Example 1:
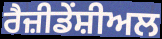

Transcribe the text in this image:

ਰੈਜ਼ੀਡੇਂਸ਼ੀਅਲ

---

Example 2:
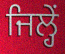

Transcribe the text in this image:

ਜਿਲ੍ਹੇਂ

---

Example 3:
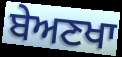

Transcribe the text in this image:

ਬੇਅਣਖਾ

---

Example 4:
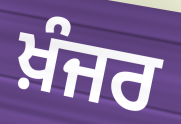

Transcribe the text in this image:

ਖ਼ੰਜਰ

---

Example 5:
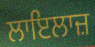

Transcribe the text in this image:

ਲਾਇਲਾਜ਼